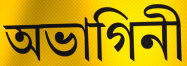
অভাগিনী